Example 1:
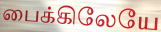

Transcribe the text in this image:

பைக்கிலேயே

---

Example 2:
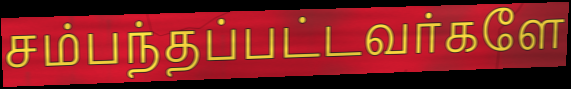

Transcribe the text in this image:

சம்பந்தப்பட்டவர்களே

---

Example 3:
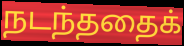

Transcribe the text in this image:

நடந்ததைக்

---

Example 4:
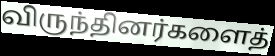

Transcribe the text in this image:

விருந்தினர்களைத்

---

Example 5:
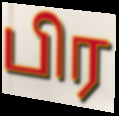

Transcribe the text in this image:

பிர